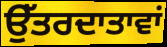
ਉੱਤਰਦਾਤਾਵਾਂ